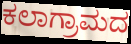
ಕಲಾಗ್ರಾಮದ